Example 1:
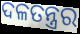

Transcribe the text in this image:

ଦଳତନ୍ତ୍ରର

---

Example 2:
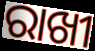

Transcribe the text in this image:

ରାଖୀ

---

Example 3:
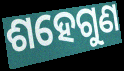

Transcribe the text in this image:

ଶହେଗୁଣ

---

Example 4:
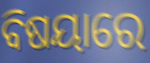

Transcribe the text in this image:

ବିଷୟାରେ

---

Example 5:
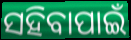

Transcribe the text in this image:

ସହିବାପାଇଁ